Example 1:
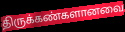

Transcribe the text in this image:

திருக்கண்களானவை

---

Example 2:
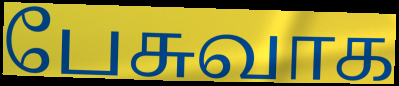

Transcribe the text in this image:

பேசுவாக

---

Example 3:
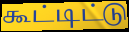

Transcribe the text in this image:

கூட்டிட்டு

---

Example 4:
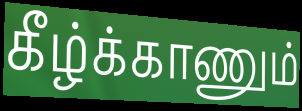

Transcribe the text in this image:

கீழ்க்காணும்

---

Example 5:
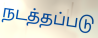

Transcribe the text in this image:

நடத்தப்படு